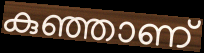
കുഞ്ഞാണ്